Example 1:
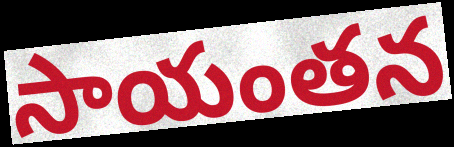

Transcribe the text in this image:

సాయంతన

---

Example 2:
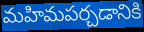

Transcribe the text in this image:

మహిమపర్చడానికి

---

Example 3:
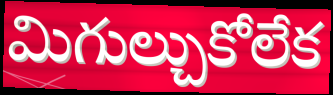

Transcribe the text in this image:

మిగుల్చుకోలేక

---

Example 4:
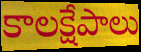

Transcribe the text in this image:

కాలక్షేపాలు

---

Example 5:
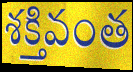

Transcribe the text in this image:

శక్తివంత